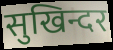
सुखिन्दर